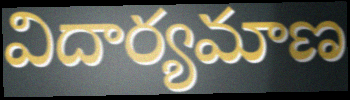
విదార్యమాణ